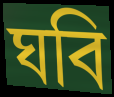
ঘবি